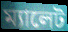
ম্যালেট